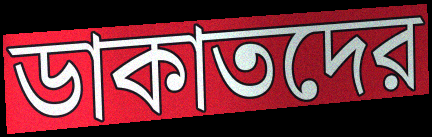
ডাকাতদের